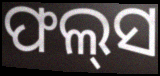
ଫଲ୍‍ସ